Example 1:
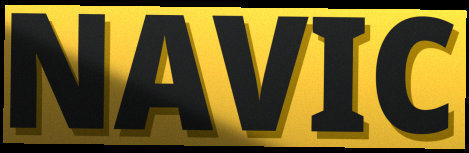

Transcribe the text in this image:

NAVIC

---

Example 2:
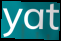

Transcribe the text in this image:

yat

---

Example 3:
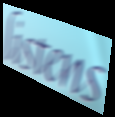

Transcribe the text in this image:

listens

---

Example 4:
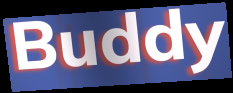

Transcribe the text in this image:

Buddy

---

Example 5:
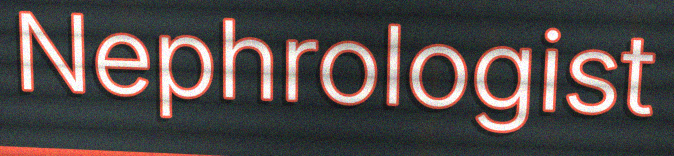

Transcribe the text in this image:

Nephrologist